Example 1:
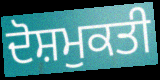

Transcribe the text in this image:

ਦੋਸ਼ਮੁਕਤੀ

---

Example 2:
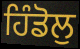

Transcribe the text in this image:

ਹਿੰਡੋਲੁ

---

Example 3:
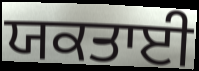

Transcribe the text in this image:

ਯਕਤਾਈ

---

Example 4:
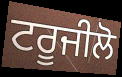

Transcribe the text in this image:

ਟਰੂਜੀਲੋ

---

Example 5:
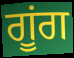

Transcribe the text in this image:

ਗੂਂਗ